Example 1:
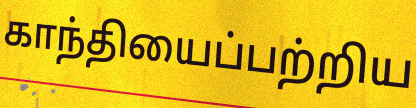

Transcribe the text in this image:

காந்தியைப்பற்றிய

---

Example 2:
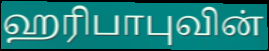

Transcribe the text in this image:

ஹரிபாபுவின்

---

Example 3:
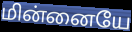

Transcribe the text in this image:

மின்னையே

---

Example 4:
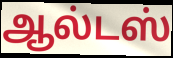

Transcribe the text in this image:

ஆல்டஸ்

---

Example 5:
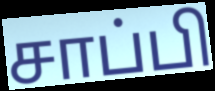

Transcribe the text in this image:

சாப்பி